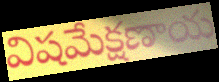
విషమేక్షణాయ